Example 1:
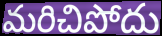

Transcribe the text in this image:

మరిచిపోదు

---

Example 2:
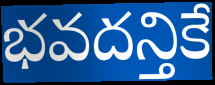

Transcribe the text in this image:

భవదన్తికే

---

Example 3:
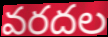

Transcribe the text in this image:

వరదల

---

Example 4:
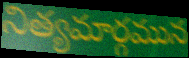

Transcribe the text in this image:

నిత్యమార్గమున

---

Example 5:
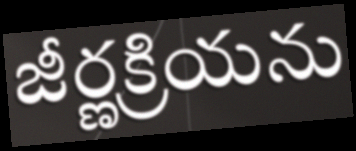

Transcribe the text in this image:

జీర్ణక్రియను